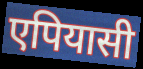
एपियासी